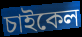
চাইকেল